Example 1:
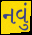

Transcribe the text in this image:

નવું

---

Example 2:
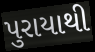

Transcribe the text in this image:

પુરાયાથી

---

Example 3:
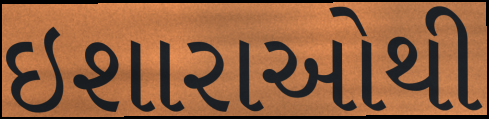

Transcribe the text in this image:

ઇશારાઓથી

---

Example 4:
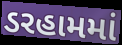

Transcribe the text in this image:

ડરહામમાં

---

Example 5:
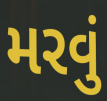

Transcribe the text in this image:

મરવું